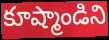
కూష్మాండిని